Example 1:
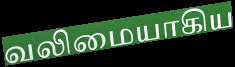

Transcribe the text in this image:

வலிமையாகிய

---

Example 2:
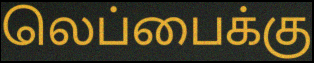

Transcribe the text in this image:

லெப்பைக்கு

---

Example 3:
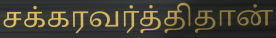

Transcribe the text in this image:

சக்கரவர்த்திதான்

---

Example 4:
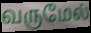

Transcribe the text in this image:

வருமேல்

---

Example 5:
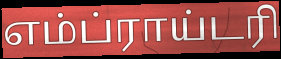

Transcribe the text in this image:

எம்ப்ராய்டரி